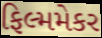
ફિલ્મમેકર